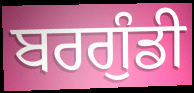
ਬਰਗੁੰਡੀ